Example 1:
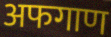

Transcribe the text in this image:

अफगाण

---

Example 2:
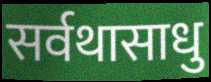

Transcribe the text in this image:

सर्वथासाधु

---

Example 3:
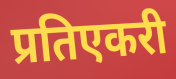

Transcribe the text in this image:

प्रतिएकरी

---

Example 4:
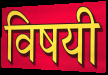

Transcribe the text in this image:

विषयी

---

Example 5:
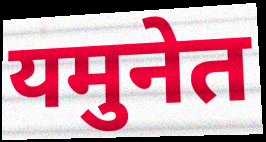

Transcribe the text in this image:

यमुनेत